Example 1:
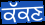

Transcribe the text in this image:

ਕੱਕਣ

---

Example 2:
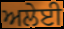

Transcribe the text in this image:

ਅਲੇਈ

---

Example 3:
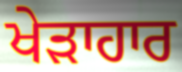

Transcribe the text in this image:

ਖੇੜਾਹਾਰ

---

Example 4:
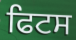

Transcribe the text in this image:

ਫਿਟਸ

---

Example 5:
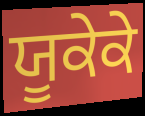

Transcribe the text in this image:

ਯੂਕੇਕੇ